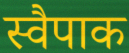
स्वैपाक